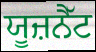
ਯੂਜ਼ਨੈੱਟ